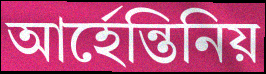
আর্হেন্তিনিয়